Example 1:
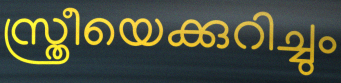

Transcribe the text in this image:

സ്ത്രീയെക്കുറിച്ചും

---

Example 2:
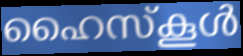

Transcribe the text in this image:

ഹൈസ്‌കൂൾ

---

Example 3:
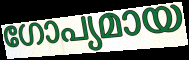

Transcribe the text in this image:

ഗോപ്യമായ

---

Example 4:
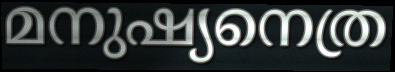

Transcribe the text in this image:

മനുഷ്യനെത്ര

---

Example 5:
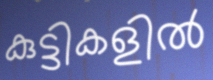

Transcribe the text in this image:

കുട്ടികളിൽ